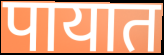
पायात